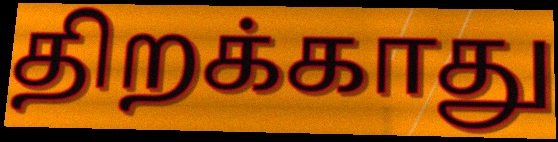
திறக்காது